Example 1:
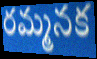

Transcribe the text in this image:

రమ్మనక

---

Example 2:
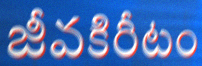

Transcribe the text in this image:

జీవకిరీటం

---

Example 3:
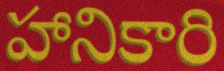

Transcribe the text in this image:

హానికారి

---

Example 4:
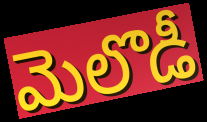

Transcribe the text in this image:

మెలొడీ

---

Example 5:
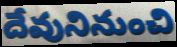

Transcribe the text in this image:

దేవునినుంచి